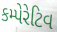
કમ્પેરેટિવ